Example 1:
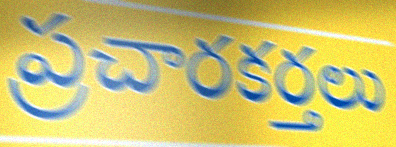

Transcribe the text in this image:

ప్రచారకర్తలు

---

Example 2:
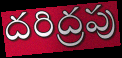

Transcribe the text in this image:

దరిద్రపు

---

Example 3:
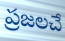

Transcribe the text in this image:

ప్రజలచే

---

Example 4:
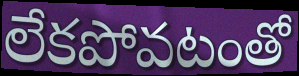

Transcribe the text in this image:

లేకపోవటంతో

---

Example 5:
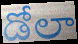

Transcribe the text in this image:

డోలా